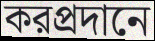
করপ্রদানে